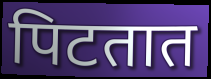
पिटतात